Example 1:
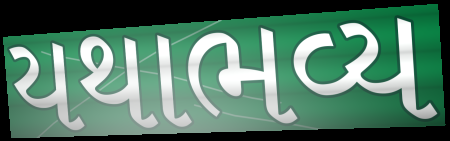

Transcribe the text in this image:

યથાભવ્ય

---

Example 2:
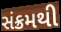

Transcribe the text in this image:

સંક્રમથી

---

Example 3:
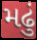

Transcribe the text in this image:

મઢું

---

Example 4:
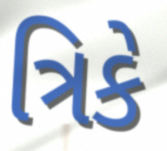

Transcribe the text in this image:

ત્રિકે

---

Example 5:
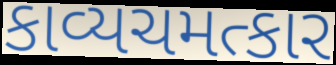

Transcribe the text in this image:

કાવ્યચમત્કાર